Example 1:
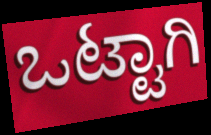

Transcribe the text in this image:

ಒಟ್ಟಾಗಿ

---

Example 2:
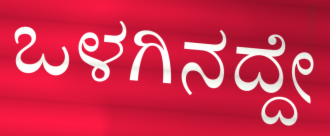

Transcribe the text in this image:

ಒಳಗಿನದ್ದೇ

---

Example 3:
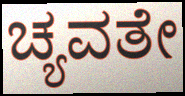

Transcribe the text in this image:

ಚ್ಯವತೇ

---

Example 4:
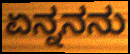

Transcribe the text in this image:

ಏನ್ನನನು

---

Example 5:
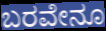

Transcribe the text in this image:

ಬರವೇನೂ